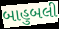
બાહુબલી